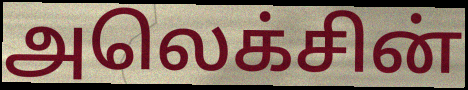
அலெக்சின்